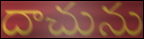
దాచును